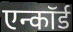
एन्कॉर्ड